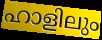
ഹാളിലും